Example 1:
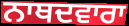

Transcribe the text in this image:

ਨਾਥਦਵਾਰਾ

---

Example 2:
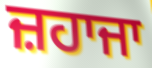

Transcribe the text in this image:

ਜ਼ਹਾਜਾ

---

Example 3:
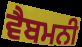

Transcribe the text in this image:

ਵੈਬਮਨੀ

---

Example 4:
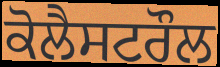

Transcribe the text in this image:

ਕੋਲੈਸਟਰੌਲ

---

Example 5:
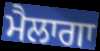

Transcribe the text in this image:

ਮੈਲਾਗਾ